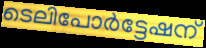
ടെലിപോർട്ടേഷന്